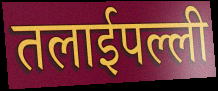
तलाईपल्ली